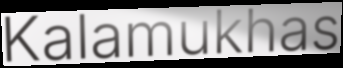
Kalamukhas